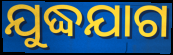
ଯୁଦ୍ଧଯାଗ